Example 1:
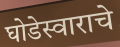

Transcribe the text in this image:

घोडेस्वाराचे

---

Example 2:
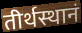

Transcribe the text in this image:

तीर्थस्थानं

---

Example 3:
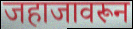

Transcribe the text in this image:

जहाजावरून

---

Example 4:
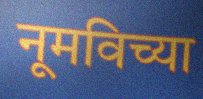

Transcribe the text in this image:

नूमविच्या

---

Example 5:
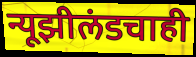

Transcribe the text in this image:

न्यूझीलंडचाही